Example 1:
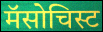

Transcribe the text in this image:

मॅसोचिस्ट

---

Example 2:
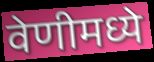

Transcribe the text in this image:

वेणीमध्ये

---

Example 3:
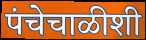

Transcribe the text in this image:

पंचेचाळीशी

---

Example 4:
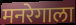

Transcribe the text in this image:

मनरेगाला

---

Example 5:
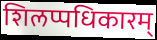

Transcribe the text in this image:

शिलप्पधिकारम्